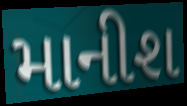
માનીશ